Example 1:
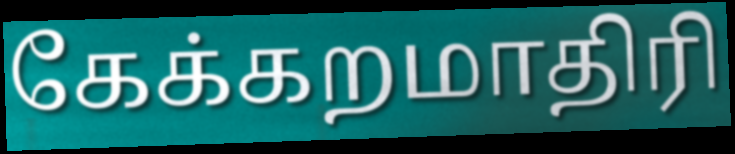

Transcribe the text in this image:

கேக்கறமாதிரி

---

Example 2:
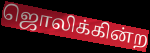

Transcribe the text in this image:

ஜொலிக்கின்ற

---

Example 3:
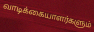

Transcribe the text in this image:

வாடிக்கையாளர்களும்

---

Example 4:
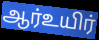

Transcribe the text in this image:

ஆர்உயிர்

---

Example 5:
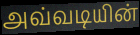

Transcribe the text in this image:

அவ்வடியின்